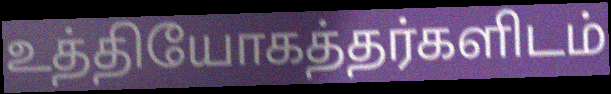
உத்தியோகத்தர்களிடம்